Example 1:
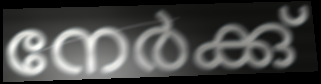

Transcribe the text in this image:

നേർക്കു്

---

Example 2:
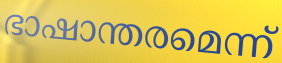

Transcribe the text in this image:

ഭാഷാന്തരമെന്ന്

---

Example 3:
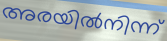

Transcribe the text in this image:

അരയിൽനിന്ന്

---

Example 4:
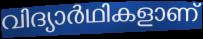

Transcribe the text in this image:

വിദ്യാർഥികളാണ്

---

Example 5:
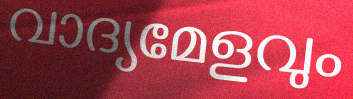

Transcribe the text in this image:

വാദ്യമേളവും